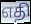
எதி